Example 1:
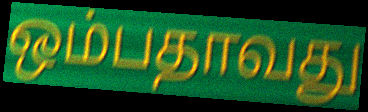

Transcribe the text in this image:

ஒம்பதாவது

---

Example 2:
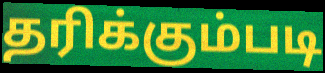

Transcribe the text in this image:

தரிக்கும்படி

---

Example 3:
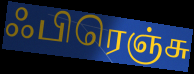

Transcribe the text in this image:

ஃபிரெஞ்சு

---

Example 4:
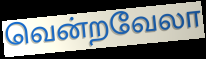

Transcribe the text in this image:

வென்றவேலா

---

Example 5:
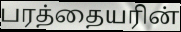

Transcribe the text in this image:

பரத்தையரின்